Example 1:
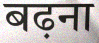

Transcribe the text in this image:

बढ़ना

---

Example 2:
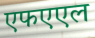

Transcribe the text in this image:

एफएएल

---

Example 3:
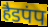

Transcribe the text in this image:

हैडपंप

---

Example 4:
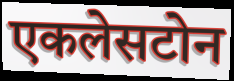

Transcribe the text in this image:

एकलेसटोन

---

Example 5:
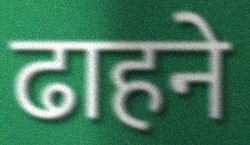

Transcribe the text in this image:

ढाहने